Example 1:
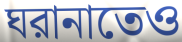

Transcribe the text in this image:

ঘরানাতেও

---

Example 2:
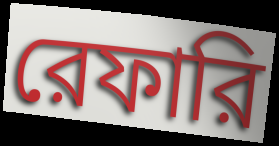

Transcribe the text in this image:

রেফারি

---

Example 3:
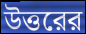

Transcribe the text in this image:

উত্তরের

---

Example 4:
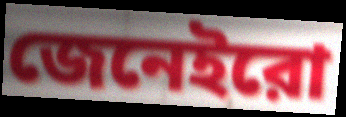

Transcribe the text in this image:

জেনেইরো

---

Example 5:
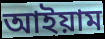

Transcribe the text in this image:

আইয়াম